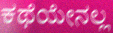
ಕಥೆಯೇನಲ್ಲ